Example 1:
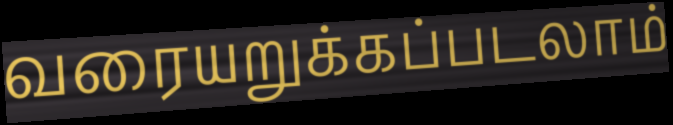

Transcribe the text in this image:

வரையறுக்கப்படலாம்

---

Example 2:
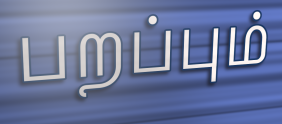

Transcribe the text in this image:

பறப்பும்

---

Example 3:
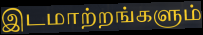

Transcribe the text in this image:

இடமாற்றங்களும்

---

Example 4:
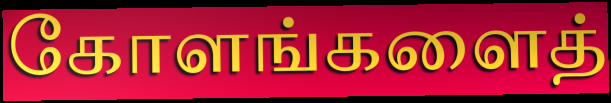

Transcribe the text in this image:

கோளங்களைத்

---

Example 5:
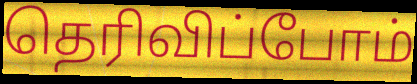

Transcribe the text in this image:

தெரிவிப்போம்